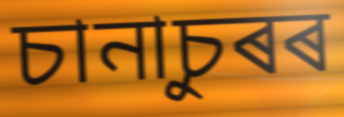
চানাচুৰৰ